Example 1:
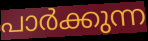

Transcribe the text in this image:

പാർക്കുന്ന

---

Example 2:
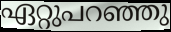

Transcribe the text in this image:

ഏറ്റുപറഞ്ഞു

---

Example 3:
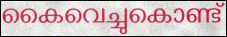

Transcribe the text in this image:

കൈവെച്ചുകൊണ്ട്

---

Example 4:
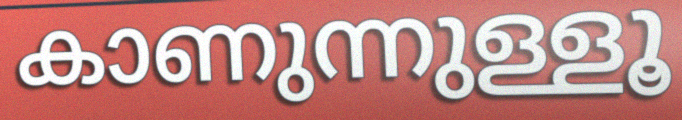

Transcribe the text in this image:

കാണുന്നുള്ളൂ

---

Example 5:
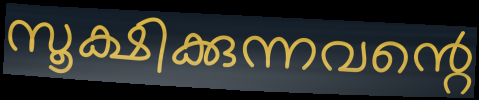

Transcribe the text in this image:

സൂക്ഷിക്കുന്നവന്റെ